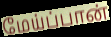
மேய்ப்பான்